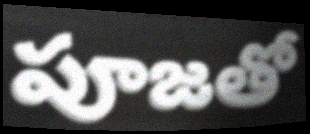
పూజతో